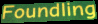
Foundling